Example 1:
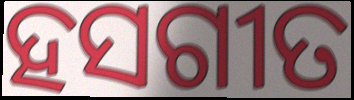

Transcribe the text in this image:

ହସଗୀତ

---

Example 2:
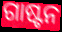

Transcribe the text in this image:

ଗାଷ୍ଟନ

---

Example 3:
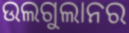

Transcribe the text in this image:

ଉଲଗୁଲାନର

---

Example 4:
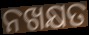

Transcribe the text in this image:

ନଖକ୍ଷତ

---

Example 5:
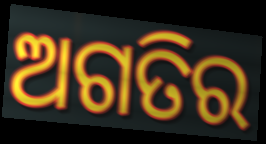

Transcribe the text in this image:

ଅଗତିର